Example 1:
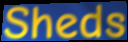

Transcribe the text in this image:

Sheds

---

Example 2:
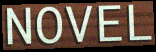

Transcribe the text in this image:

NOVEL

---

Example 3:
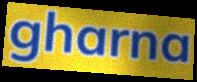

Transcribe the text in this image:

gharna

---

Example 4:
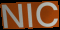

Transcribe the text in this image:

NIC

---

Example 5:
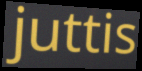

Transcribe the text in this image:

juttis